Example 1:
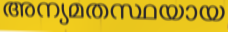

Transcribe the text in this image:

അന്യമതസ്ഥയായ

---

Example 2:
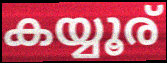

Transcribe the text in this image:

കയ്യൂര്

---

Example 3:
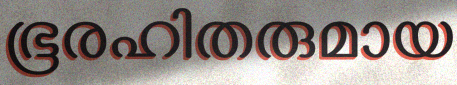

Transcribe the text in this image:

ഭൂരഹിതരുമായ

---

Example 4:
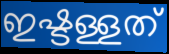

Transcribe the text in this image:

ഇഷ്ടള്ളത്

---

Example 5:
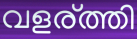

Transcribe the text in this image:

വളര്ത്തി